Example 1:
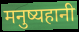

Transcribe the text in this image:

मनुष्यहानी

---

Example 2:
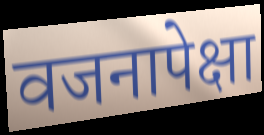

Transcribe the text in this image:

वजनापेक्षा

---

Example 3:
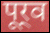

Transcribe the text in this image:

पूर्व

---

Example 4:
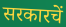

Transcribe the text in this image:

सरकारचें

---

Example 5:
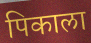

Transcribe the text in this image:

पिकाला